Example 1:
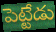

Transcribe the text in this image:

పెట్టేడు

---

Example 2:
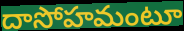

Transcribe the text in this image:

దాసోహమంటూ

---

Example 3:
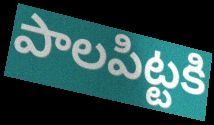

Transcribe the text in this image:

పాలపిట్టకి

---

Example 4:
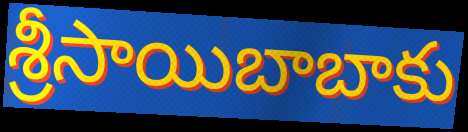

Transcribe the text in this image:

శ్రీసాయిబాబాకు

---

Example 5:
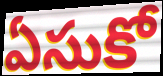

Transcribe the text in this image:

ఏసుకో